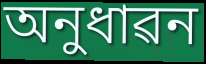
অনুধাৱন